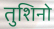
तुशिनो